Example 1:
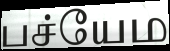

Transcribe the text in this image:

பச்யேம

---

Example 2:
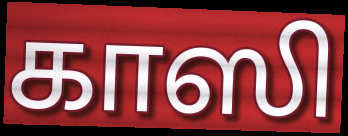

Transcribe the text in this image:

காஸி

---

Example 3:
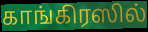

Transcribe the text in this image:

காங்கிரஸில்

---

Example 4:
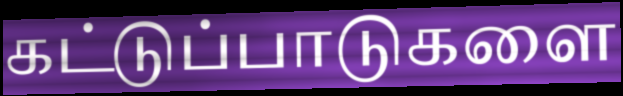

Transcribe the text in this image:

கட்டுப்பாடுகளை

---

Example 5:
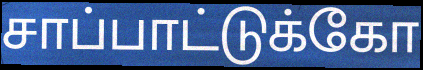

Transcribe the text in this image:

சாப்பாட்டுக்கோ